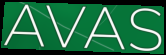
AVAS